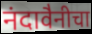
नंदावैनीचा